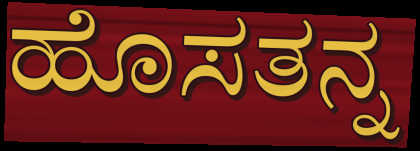
ಹೊಸತನ್ನ